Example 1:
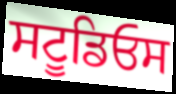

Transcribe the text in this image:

ਸਟੂਡਿਓਸ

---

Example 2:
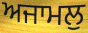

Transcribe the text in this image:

ਅਜਾਮਲੁ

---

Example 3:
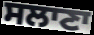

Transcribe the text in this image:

ਸਲਾਣਾ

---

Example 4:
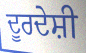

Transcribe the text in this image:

ਦੂਰਦੇਸ਼ੀ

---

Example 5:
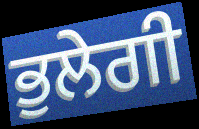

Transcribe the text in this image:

ਭੁਲੇਗੀ